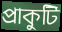
প্রাকুটি